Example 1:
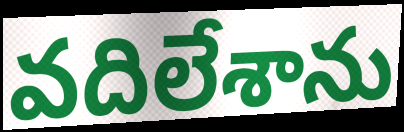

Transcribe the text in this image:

వదిలేశాను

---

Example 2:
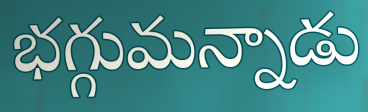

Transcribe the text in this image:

భగ్గుమన్నాడు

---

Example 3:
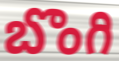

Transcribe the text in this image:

బొంగి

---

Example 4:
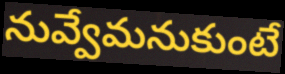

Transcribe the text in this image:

నువ్వేమనుకుంటే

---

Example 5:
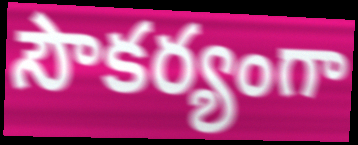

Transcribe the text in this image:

సౌకర్యంగా